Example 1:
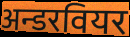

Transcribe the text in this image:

अन्डरवियर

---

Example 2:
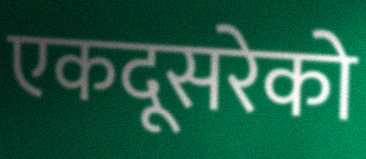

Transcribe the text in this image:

एकदूसरेको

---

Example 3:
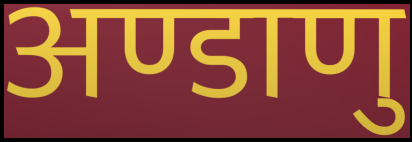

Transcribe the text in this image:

अण्डाणु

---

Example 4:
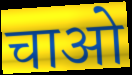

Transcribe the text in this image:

चाओ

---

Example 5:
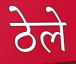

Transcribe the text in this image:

ठेले